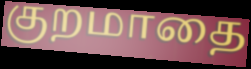
குறமாதை